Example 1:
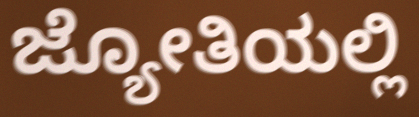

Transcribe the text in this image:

ಜ್ಯೋತಿಯಲ್ಲಿ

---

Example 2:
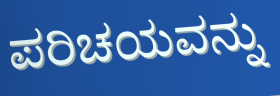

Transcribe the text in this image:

ಪರಿಚಯವನ್ನು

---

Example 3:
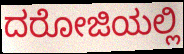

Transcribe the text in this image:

ದರೋಜಿಯಲ್ಲಿ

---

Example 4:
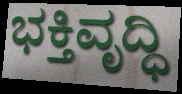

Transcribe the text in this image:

ಭಕ್ತಿವೃದ್ಧಿ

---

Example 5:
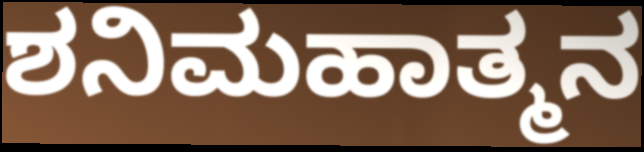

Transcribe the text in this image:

ಶನಿಮಹಾತ್ಮನ